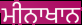
ਮੀਨਾਖਾਨ